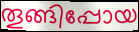
തൂങ്ങിപ്പോയ